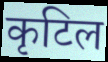
कृटिल